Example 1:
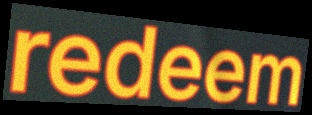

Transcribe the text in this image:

redeem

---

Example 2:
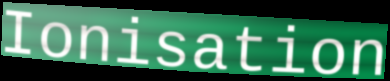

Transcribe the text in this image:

Ionisation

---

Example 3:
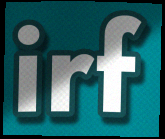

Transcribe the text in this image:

irf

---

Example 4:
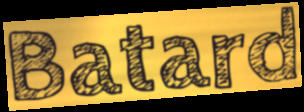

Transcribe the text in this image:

Batard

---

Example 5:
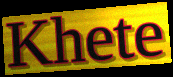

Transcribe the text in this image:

Khete